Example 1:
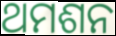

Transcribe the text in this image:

ଥମଶନ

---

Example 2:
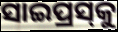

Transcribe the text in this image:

ସାଇପ୍ରସ୍‌କୁ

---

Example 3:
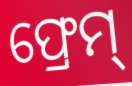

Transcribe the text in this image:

ଫ୍ରେମ୍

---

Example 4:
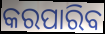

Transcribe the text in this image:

କରପାରିବ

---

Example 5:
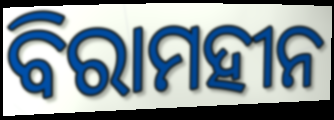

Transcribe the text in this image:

ବିରାମହୀନ